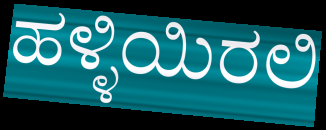
ಹಳ್ಳಿಯಿರಲಿ